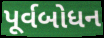
પૂર્વબોધન